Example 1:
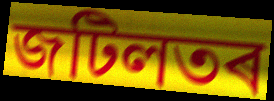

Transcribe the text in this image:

জটিলতৰ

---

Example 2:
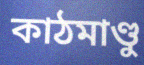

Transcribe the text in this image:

কাঠমাণ্ডু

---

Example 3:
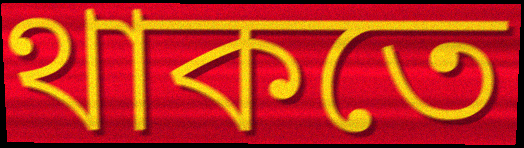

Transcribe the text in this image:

থাকতে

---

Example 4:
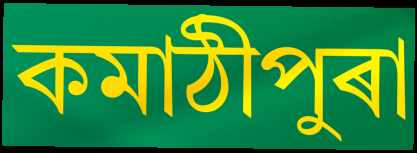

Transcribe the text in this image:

কমাঠীপুৰা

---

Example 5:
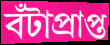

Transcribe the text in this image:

বঁটাপ্ৰাপ্ত